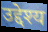
उद्देश्य